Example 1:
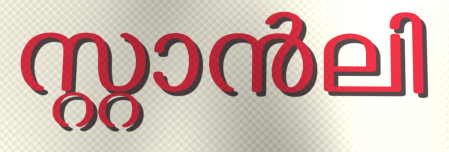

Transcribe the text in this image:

സ്റ്റാൻലി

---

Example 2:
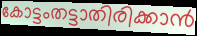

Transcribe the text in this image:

കോട്ടംതട്ടാതിരിക്കാൻ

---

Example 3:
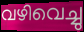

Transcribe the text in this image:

വഴിവെച്ചു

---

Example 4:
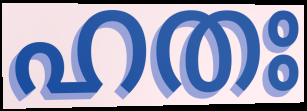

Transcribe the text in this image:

ഹതഃ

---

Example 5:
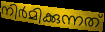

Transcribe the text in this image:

നിർമിക്കുന്നത്